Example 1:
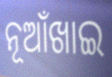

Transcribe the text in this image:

ନୂଆଁଖାଇ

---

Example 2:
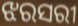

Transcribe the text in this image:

ଝରସରୀ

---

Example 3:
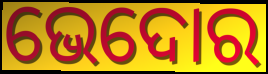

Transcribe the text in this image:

ଭେଦୋର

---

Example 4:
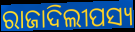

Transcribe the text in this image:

ରାଜାଦିଲୀପସ୍ୟ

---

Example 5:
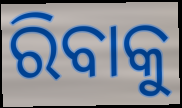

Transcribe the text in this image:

ରିବାକୁ